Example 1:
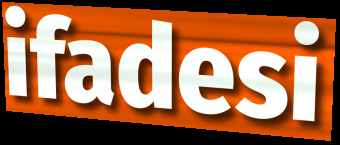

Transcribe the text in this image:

ifadesi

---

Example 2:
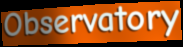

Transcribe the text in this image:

Observatory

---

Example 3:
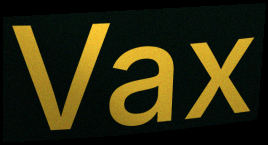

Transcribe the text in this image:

Vax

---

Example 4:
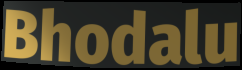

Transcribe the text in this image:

Bhodalu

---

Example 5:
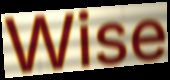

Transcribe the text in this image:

Wise